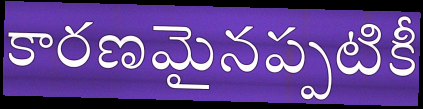
కారణమైనప్పటికీ